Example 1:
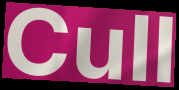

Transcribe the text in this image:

Cull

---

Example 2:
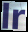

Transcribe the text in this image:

Ir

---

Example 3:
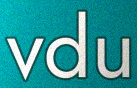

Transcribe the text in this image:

vdu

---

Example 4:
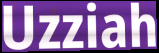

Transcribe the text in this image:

Uzziah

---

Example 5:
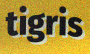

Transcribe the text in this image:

tigris